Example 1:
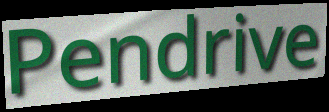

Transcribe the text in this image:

Pendrive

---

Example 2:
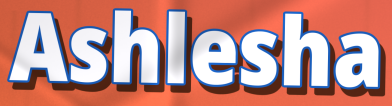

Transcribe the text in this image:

Ashlesha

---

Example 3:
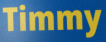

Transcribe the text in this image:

Timmy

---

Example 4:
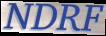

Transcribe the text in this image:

NDRF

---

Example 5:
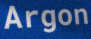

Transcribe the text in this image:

Argon